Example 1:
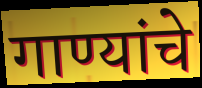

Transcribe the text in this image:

गाण्यांचे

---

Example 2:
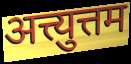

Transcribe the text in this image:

अत्त्युत्तम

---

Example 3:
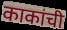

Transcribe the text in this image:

काकांची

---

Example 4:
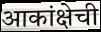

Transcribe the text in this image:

आकांक्षेची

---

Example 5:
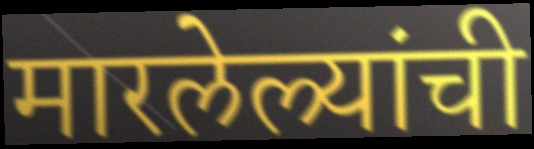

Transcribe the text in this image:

मारलेल्यांची